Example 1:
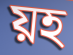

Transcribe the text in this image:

য়হ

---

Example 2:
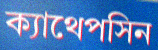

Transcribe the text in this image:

ক্যাথেপসিন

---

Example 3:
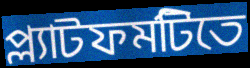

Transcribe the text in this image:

প্ল্যাটফর্মটিতে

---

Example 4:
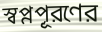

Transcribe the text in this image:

স্বপ্নপূরণের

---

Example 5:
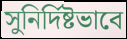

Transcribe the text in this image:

সুনির্দিষ্টভাবে